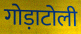
गोड़ाटोली